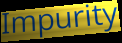
Impurity